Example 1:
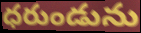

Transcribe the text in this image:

ధరుండును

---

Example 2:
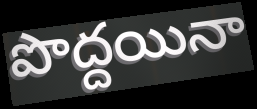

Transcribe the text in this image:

పొద్దయినా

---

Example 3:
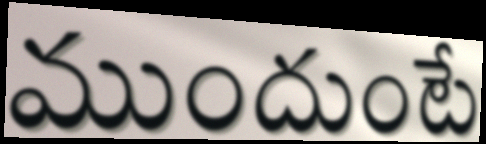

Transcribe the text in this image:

ముందుంటే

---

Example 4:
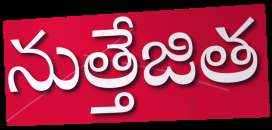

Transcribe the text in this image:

నుత్తేజిత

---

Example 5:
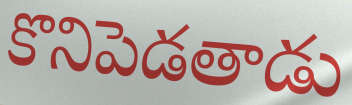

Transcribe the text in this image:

కొనిపెడతాడు